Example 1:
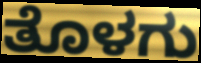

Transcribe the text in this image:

ತೊಳಗು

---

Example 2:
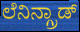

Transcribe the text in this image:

ಲೆನಿನ್ಗ್ರಾಡ್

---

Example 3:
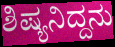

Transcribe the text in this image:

ಶಿಷ್ಯನಿದ್ದನು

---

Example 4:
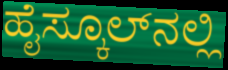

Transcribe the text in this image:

ಹೈಸ್ಕೂಲ್‍ನಲ್ಲಿ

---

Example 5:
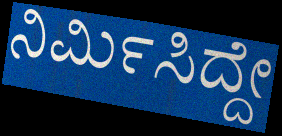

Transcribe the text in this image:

ನಿರ್ಮಿಸಿದ್ದೇ